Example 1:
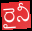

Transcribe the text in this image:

రైనీ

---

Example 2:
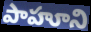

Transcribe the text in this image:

పాహూని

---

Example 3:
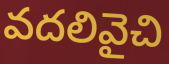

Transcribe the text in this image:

వదలివైచి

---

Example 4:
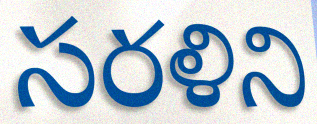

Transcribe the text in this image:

సరళిని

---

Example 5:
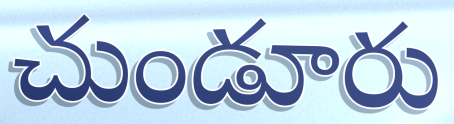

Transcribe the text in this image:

చుండూరు